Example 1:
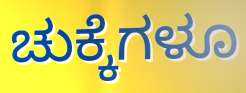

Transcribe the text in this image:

ಚುಕ್ಕೆಗಳೂ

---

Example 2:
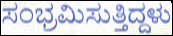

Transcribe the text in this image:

ಸಂಭ್ರಮಿಸುತ್ತಿದ್ದಳು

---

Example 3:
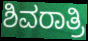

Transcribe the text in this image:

ಶಿವರಾತ್ರಿ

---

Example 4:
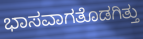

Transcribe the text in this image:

ಭಾಸವಾಗತೊಡಗಿತ್ತು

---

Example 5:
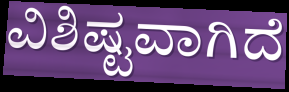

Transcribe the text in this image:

ವಿಶಿಷ್ಟವಾಗಿದೆ